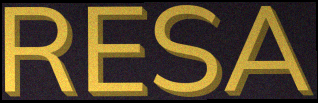
RESA